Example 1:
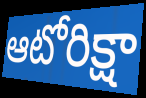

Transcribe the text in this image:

ఆటోరిక్షా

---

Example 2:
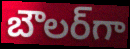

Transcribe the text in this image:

బౌలర్‌గా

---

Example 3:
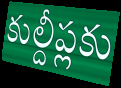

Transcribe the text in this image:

కుల్దీప్లకు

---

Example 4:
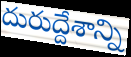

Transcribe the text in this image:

దురుద్దేశాన్ని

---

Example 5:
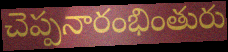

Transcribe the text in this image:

చెప్పనారంభింతురు